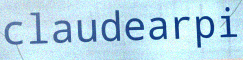
claudearpi